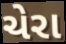
ચેરા